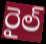
రైల్